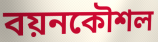
বয়নকৌশল